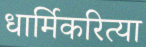
धार्मिकरित्या